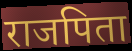
राजपिता